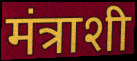
मंत्राशी